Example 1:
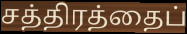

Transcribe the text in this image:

சத்திரத்தைப்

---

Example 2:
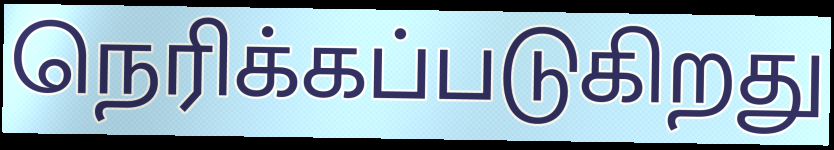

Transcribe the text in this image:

நெரிக்கப்படுகிறது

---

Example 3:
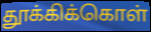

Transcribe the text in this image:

தூக்கிக்கொள்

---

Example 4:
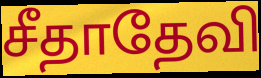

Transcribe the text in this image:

சீதாதேவி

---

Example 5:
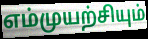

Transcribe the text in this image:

எம்முயற்சியும்